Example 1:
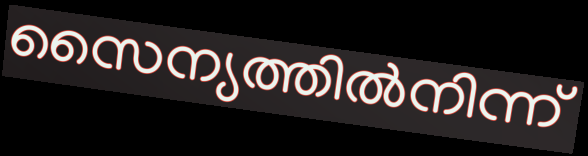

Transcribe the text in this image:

സൈന്യത്തിൽനിന്ന്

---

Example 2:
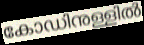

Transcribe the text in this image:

കോഡിനുള്ളിൽ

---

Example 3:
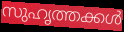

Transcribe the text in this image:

സുഹൃത്തക്കൾ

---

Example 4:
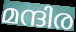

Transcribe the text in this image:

മന്ദിര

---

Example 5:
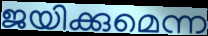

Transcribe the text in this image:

ജയിക്കുമെന്ന